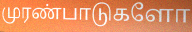
முரண்பாடுகளோ